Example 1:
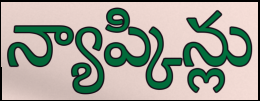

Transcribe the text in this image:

న్యాప్కిన్లు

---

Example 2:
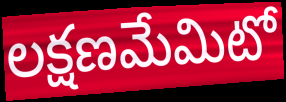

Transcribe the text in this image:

లక్షణమేమిటో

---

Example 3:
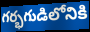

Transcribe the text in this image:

గర్భగుడిలోనికి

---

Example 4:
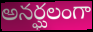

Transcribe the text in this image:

అనర్ఘలంగా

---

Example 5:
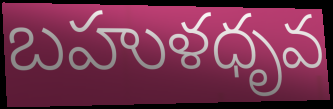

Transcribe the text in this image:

బహుళధృవ